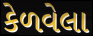
કેળવેલા